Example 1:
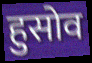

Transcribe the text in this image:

हुसोव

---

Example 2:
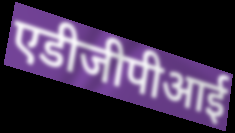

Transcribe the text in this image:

एडीजीपीआई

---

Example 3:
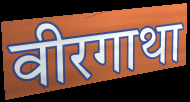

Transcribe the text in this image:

वीरगाथा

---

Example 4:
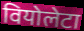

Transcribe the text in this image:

वियोलेटा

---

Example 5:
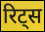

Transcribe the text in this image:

रिट्स